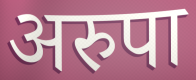
अरुपा